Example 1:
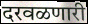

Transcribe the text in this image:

दरवळणारी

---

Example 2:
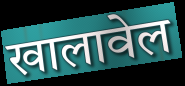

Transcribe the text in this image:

खालावेल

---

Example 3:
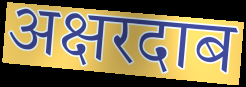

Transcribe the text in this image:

अक्षरदाब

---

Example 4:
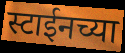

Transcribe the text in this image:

स्टाईनच्या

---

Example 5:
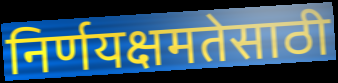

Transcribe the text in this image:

निर्णयक्षमतेसाठी